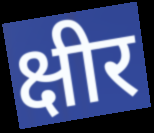
क्षीर